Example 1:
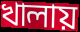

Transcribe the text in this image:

খালায়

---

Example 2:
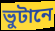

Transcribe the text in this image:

ভুটানে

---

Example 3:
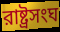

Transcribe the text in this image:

রাষ্ট্রসংঘ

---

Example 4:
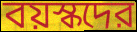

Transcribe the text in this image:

বয়স্কদের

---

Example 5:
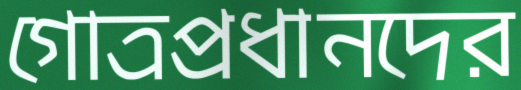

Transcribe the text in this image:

গোত্রপ্রধানদের